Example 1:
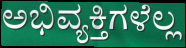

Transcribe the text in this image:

ಅಭಿವ್ಯಕ್ತಿಗಳೆಲ್ಲ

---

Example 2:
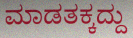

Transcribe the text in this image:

ಮಾಡತಕ್ಕದ್ದು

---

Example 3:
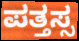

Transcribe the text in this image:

ಪತ್ತಸ್ಸ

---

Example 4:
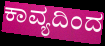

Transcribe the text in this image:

ಕಾವ್ಯದಿಂದ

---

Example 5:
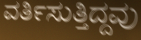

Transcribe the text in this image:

ವರ್ತಿಸುತ್ತಿದ್ದವು